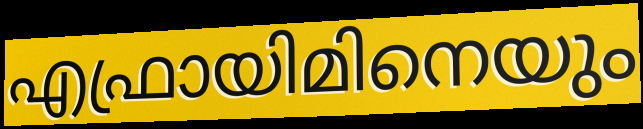
എഫ്രായിമിനെയും